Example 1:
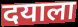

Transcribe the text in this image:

दयाला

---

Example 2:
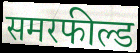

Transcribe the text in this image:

समरफील्ड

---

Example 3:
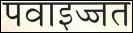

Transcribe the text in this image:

पवाइज्जत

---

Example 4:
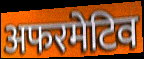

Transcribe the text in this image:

अफरमेटिव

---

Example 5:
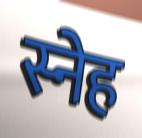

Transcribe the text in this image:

स्नेह